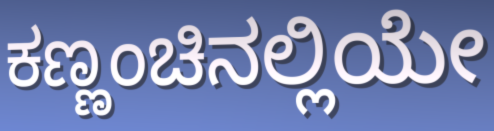
ಕಣ್ಣಂಚಿನಲ್ಲಿಯೇ